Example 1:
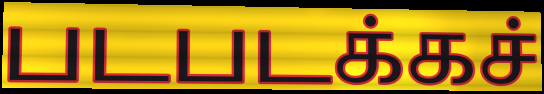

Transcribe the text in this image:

படபடக்கச்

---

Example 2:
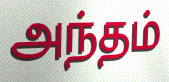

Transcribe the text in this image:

அந்தம்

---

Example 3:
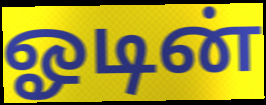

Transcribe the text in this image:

ஓடின்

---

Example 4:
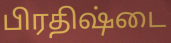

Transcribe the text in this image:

பிரதிஷ்டை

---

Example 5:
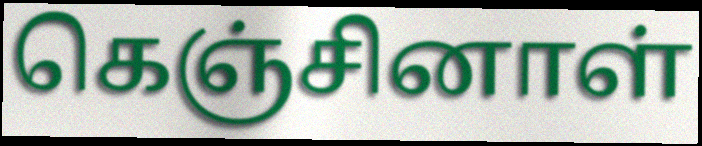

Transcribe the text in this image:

கெஞ்சினாள்